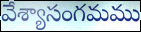
వేశ్యాసంగమము